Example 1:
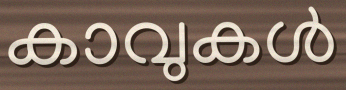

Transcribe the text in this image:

കാവുകൾ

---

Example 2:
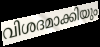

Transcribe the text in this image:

വിശദമാക്കിയും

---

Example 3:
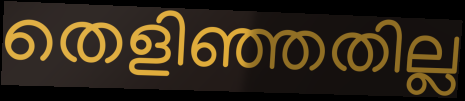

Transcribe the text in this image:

തെളിഞ്ഞതില്ല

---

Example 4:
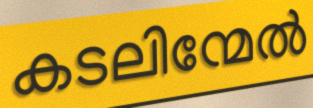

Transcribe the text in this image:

കടലിന്മേൽ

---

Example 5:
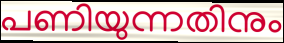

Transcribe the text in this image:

പണിയുന്നതിനും